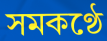
সমকণ্ঠে